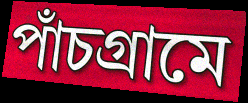
পাঁচগ্রামে